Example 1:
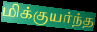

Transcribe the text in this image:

மிக்குயர்ந்த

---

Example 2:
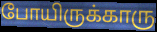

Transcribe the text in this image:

போயிருக்காரு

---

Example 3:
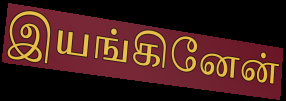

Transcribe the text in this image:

இயங்கினேன்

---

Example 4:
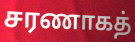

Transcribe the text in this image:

சரணாகத்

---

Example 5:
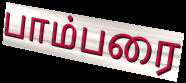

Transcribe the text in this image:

பாம்பரை